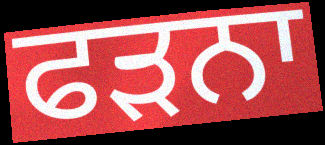
ਫੜਨਾ